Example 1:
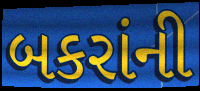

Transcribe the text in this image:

બકરાંની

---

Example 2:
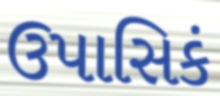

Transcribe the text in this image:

ઉપાસિકં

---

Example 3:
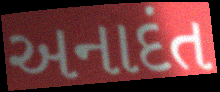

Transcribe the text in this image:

અનાદંત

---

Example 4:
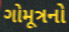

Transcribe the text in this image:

ગોમૂત્રનો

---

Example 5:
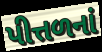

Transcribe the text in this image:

પીત્તળનાં